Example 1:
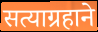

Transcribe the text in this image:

सत्याग्रहाने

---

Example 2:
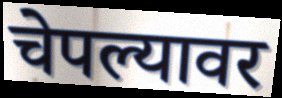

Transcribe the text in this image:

चेपल्यावर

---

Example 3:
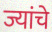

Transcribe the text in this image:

ज्यांचे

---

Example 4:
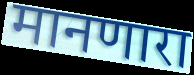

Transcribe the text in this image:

मानणारा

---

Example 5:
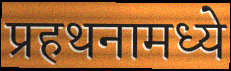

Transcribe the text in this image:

प्रहथनामध्ये